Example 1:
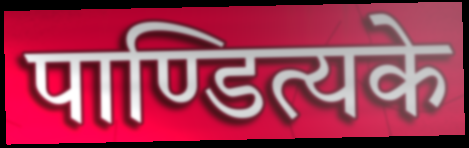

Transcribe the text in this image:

पाण्डित्यके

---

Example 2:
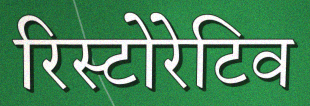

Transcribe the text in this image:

रिस्टोरेटिव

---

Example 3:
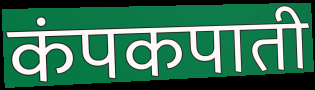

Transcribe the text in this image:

कंपकपाती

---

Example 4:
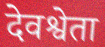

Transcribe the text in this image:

देवश्वेता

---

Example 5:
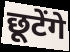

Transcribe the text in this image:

छूटेंगे